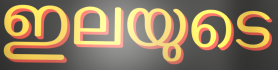
ഇലയുടെ